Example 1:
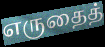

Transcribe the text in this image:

எருதைத்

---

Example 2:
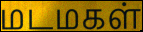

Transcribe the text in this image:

மடமகள்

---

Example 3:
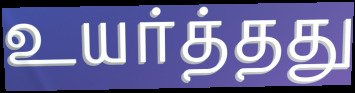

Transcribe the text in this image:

உயர்த்தது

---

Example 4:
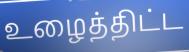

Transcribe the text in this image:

உழைத்திட்ட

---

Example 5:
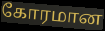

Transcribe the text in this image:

கோரமான